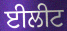
ਈਲੀਟ